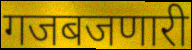
गजबजणारी